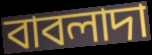
বাবলাদা